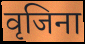
वृजिना